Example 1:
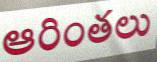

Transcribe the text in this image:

ఆరింతలు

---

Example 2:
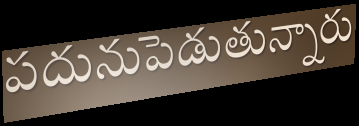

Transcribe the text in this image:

పదునుపెడుతున్నారు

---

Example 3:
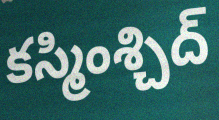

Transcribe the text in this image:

కస్మింశ్చిద్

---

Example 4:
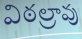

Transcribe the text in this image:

విఠల్రావు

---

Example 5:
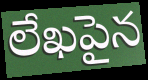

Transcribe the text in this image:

లేఖపైన